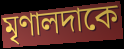
মৃণালদাকে